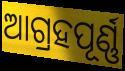
ଆଗ୍ରହପୂର୍ଣ୍ଣ